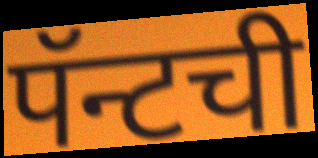
पॅन्टची